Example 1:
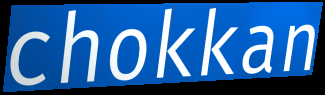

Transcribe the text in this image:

chokkan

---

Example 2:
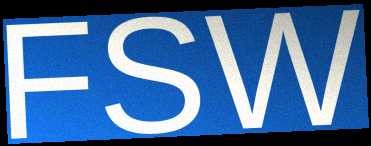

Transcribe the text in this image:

FSW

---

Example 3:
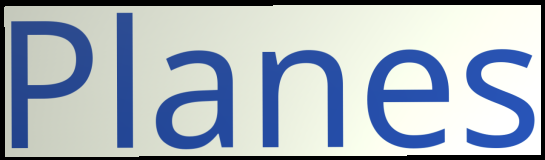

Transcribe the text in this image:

Planes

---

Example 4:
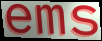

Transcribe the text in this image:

ems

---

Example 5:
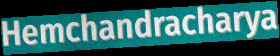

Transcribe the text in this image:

Hemchandracharya